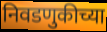
निवडणुकीच्या